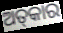
ଅତ୍‌କାର